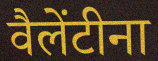
वैलेंटीना